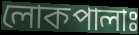
লোকপালাঃ